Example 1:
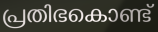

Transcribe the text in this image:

പ്രതിഭകൊണ്ട്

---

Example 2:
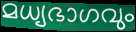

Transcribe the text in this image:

മധ്യഭാഗവും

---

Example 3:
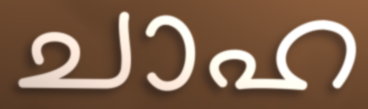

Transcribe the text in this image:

ചാഹ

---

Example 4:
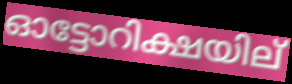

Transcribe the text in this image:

ഓട്ടോറിക്ഷയില്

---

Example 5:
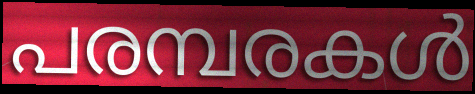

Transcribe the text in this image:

പരമ്പരകൾ